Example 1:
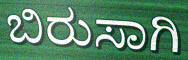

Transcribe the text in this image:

ಬಿರುಸಾಗಿ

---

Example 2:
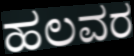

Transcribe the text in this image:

ಹಲವರ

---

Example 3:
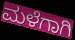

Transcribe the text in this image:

ಮಳೆಗಾಗಿ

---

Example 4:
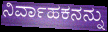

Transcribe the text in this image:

ನಿರ್ವಾಹಕನನ್ನು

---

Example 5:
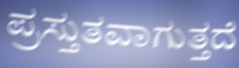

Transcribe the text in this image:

ಪ್ರಸ್ತುತವಾಗುತ್ತದೆ